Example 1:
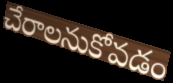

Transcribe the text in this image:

చేరాలనుకోవడం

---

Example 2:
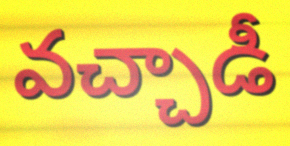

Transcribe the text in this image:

వచ్చాడీ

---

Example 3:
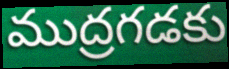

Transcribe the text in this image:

ముద్రగడకు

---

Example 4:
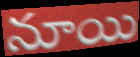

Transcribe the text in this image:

నూయి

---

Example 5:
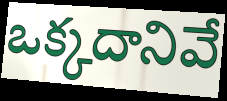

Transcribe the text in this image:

ఒక్కదానివే